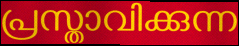
പ്രസ്താവിക്കുന്ന